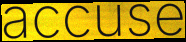
accuse